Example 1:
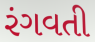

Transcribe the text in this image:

રંગવતી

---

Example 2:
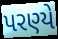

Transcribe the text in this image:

પરણ્યે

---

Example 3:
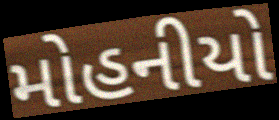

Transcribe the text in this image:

મોહનીયો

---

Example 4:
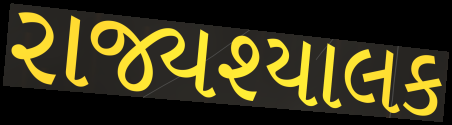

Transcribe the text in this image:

રાજ્યશ્યાલક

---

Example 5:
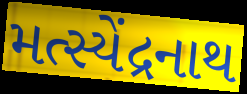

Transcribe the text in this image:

મત્સ્યેંદ્રનાથ